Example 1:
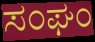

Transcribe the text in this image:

ಸಂಘಂ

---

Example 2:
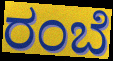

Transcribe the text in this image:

ರಂಬೆ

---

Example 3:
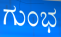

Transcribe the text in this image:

ಗುಂಭ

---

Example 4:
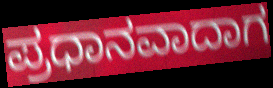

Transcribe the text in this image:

ಪ್ರಧಾನವಾದಾಗ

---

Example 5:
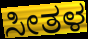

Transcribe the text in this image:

ಸೀತಳ